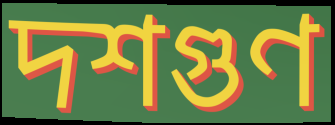
দশগুণ